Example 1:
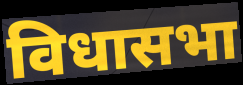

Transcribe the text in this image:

विधासभा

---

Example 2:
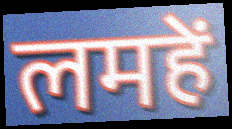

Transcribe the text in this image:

लमहें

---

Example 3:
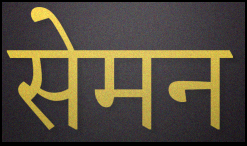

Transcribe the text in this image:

सेमन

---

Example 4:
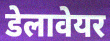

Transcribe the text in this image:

डेलावेयर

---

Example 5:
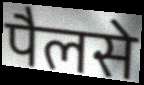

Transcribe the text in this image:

पैलसे